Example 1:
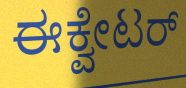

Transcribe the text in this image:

ಈಕ್ವೇಟರ್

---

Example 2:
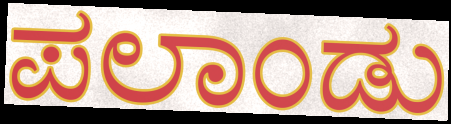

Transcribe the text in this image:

ಪಲಾಂಡು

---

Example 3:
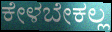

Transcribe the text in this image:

ಕೇಳಬೇಕಲ್ಲ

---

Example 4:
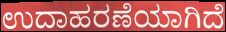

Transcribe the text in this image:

ಉದಾಹರಣೆಯಾಗಿದೆ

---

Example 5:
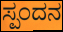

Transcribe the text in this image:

ಸ್ಪಂದನ